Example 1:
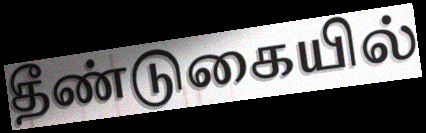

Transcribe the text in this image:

தீண்டுகையில்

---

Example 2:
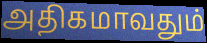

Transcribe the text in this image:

அதிகமாவதும்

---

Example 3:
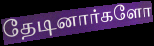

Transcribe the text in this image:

தேடினார்களோ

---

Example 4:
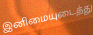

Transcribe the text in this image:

இனிமையுடைத்து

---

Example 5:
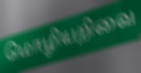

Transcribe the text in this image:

மொழியறிவை